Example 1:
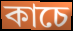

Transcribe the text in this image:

কাচে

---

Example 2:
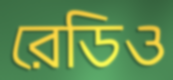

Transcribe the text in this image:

রেডিও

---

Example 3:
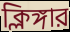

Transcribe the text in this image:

ক্লিঙ্গার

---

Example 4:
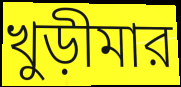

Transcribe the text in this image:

খুড়ীমার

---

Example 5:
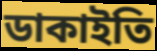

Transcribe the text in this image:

ডাকাইতি